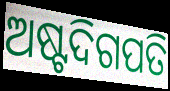
ଅଷ୍ଟଦିଗପତି